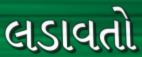
લડાવતો